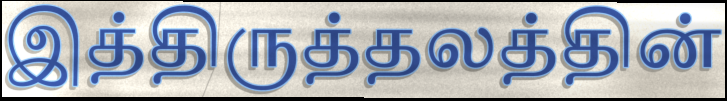
இத்திருத்தலத்தின்